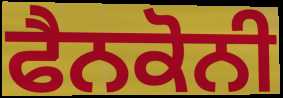
ਫੈਨਕੋਨੀ